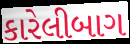
કારેલીબાગ